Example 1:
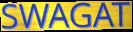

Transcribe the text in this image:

SWAGAT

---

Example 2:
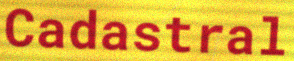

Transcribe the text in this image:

Cadastral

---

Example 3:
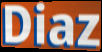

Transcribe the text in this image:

Diaz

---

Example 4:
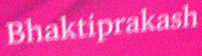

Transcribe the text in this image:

Bhaktiprakash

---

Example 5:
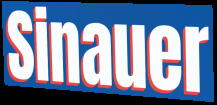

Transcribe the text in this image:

Sinauer